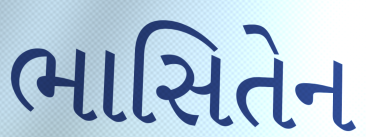
ભાસિતેન